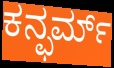
ಕನ್ಫರ್ಮ್